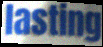
lasting